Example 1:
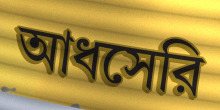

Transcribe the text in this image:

আধসেরি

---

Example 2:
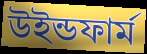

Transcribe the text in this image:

উইন্ডফার্ম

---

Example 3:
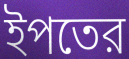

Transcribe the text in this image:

ইপতের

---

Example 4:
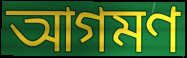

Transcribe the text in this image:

আগমণ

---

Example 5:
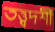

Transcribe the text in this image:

তত্ত্বদর্শী